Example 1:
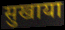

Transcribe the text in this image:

सुखाया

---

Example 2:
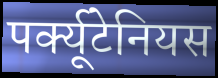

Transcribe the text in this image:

पर्क्यूटेनियस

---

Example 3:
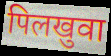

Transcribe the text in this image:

पिलखुवा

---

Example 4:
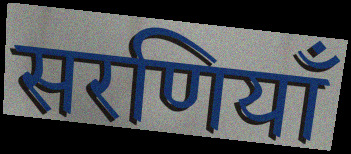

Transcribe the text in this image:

सरणियाँ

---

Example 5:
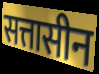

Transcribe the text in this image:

सत्तासीन